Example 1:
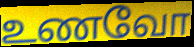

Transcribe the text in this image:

உணவோ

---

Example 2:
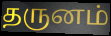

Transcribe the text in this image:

தருனம்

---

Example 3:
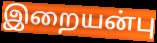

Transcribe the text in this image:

இறையன்பு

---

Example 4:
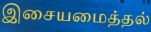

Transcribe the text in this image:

இசையமைத்தல்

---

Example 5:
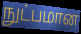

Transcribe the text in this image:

நுட்பமான